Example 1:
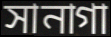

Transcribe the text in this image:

সানাগা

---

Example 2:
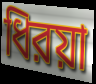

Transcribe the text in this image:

ধিরয়া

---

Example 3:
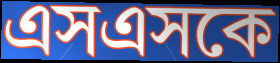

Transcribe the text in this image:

এসএসকে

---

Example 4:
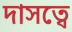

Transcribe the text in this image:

দাসত্বে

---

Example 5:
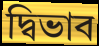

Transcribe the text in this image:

দ্বিভাব